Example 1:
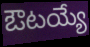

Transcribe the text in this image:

ఔటయ్యే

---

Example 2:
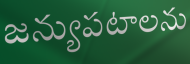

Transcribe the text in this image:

జన్యుపటాలను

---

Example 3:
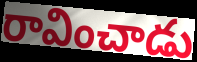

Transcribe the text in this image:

రావించాడు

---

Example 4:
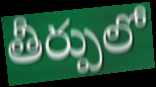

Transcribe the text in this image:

తీర్పులో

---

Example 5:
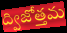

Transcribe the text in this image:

ద్విజోత్తమ